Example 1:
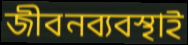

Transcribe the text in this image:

জীবনব্যবস্থাই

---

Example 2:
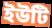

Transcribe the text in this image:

ইউটি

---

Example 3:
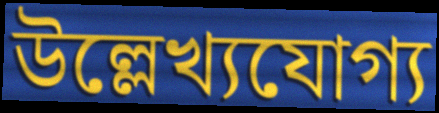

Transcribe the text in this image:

উল্লেখ্যযোগ্য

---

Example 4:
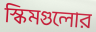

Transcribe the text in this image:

স্কিমগুলোর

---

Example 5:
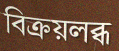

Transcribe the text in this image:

বিক্রয়লব্ধ